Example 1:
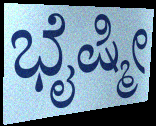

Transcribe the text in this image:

ಭೈಷ್ಮೀ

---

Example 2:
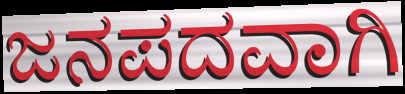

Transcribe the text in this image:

ಜನಪದವಾಗಿ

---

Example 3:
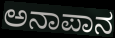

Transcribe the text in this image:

ಅನಾಪಾನ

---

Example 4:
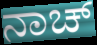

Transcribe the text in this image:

ನಾಚ್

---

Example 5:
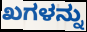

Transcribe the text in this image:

ಖಗಳನ್ನು